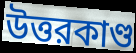
উত্তরকাণ্ড